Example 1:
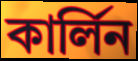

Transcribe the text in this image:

কার্লিন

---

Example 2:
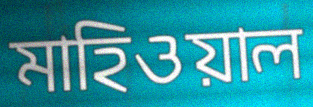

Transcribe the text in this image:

মাহিওয়াল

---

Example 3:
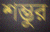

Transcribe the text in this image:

শম্ভুর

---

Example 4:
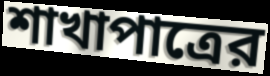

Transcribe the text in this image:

শাখাপাত্রের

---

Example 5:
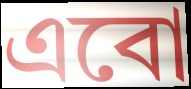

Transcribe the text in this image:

এবো